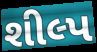
શીલ્પ